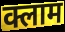
क्लाम